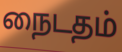
நைடதம்